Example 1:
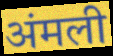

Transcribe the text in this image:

अंमली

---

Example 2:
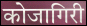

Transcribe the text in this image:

कोजागिरी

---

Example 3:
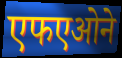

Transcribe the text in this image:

एफएओने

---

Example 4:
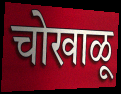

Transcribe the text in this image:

चोखाळू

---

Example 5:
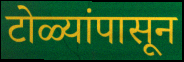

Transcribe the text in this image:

टोळ्यांपासून